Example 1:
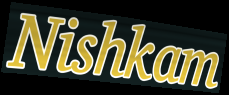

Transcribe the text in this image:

Nishkam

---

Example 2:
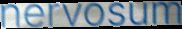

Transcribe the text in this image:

nervosum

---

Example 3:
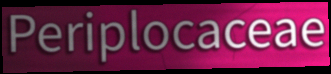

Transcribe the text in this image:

Periplocaceae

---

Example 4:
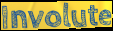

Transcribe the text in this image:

Involute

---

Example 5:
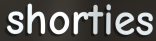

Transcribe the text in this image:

shorties